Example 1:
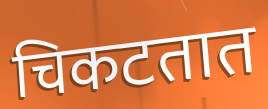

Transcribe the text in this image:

चिकटतात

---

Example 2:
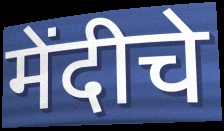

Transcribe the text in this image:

मेंदीचे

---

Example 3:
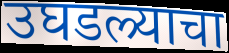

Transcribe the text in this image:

उघडल्याचा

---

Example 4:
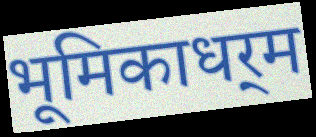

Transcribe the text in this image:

भूमिकाधर्म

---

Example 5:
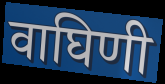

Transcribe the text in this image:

वाघिणी